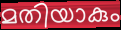
മതിയാകും